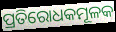
ପ୍ରତିରୋଧକମୂଳକ